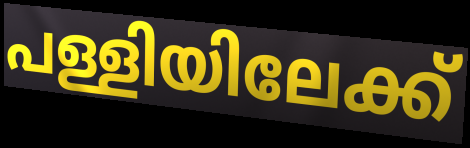
പള്ളിയിലേക്ക്